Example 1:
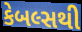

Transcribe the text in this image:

કેબલ્સથી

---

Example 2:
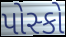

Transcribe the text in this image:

પોસ્કો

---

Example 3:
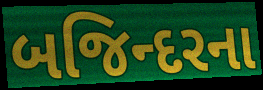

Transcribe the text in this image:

બજિન્દરના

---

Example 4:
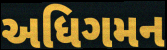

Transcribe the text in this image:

અધિગમન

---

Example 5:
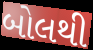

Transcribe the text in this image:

બોલથી